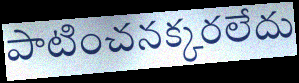
పాటించనక్కరలేదు